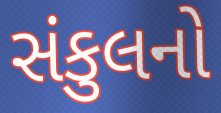
સંકુલનો